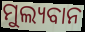
ମୁଲ୍ୟବାନ